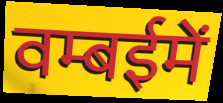
वम्बईमें